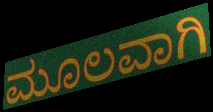
ಮೂಲವಾಗಿ